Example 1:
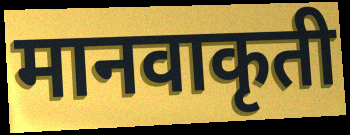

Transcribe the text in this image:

मानवाकृती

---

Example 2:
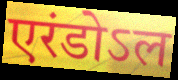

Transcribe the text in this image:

एरंडोऽल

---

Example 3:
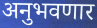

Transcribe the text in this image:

अनुभवणार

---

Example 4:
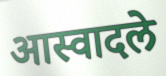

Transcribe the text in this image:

आस्वादले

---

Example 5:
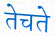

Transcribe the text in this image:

तेचते